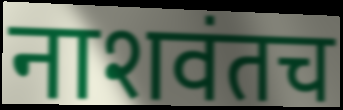
नाशवंतच